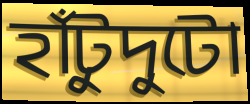
হাঁটুদুটো